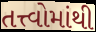
તત્ત્વોમાંથી